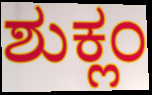
ಶುಕ್ಲಂ